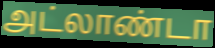
அட்லாண்டா